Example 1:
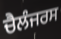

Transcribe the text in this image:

ਚੈਲੰਜਰਸ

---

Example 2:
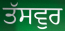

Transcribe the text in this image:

ਤੱਸਵੁਰ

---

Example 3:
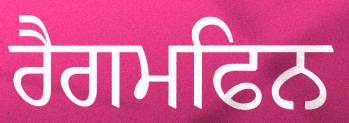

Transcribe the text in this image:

ਰੈਗਮਫਿਨ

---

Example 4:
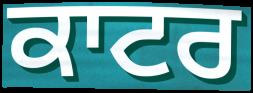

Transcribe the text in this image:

ਕਾਟਰ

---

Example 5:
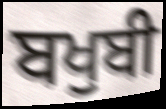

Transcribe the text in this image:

ਬਖੁਬੀ